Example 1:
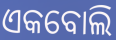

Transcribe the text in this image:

ଏକବୋଲି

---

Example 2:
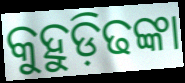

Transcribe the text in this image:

କୁହୁଡ଼ିଢଙ୍କା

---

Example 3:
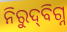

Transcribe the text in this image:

ନିରୁଦ୍‌ବିଗ୍ନ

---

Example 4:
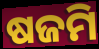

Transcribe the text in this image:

ଷଜମି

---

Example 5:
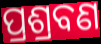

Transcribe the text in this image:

ପ୍ରଶ୍ରବଣ